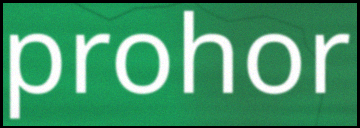
prohor